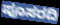
ಪೂಸರದಿ